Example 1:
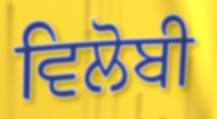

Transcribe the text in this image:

ਵਿਲੋਬੀ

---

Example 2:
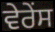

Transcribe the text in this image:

ਵੇਰੇਂਸ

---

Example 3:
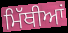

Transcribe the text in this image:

ਮਿੱਥੀਆਂ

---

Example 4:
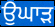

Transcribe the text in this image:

ਉਘਾੜ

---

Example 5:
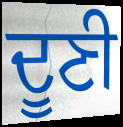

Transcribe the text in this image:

ਦੂਣੀ